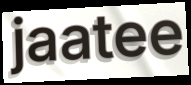
jaatee